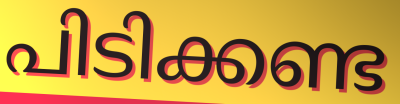
പിടിക്കണ്ട